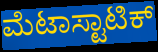
ಮೆಟಾಸ್ಟಾಟಿಕ್